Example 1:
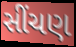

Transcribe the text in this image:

સીંચણ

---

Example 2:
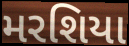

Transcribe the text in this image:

મરશિયા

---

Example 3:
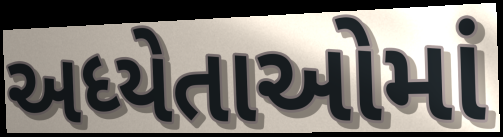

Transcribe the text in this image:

અધ્યેતાઓમાં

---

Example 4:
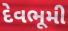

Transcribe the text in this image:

દેવભૂમી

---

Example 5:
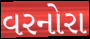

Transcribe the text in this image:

વરનોરા